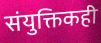
संयुक्तिकही